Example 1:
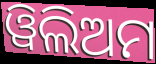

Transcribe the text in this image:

ୱିଲିଅମ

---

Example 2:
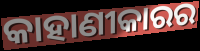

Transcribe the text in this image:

କାହାଣୀକାରର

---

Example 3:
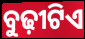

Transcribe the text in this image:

ବୁଢ଼ୀଟିଏ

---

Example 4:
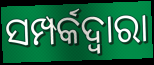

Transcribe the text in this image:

ସମ୍ପର୍କଦ୍ୱାରା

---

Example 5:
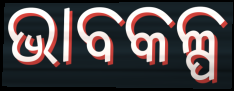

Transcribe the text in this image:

ଭାବକଳ୍ପ